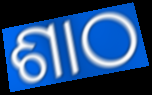
ଶାଠ